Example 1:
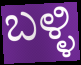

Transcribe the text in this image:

ಬಳ್ಳಿ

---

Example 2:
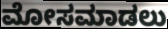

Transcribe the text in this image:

ಮೋಸಮಾಡಲು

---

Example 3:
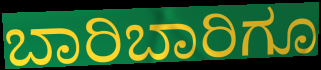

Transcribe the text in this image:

ಬಾರಿಬಾರಿಗೂ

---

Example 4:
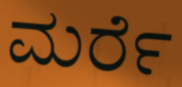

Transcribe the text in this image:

ಮರ್ರೆ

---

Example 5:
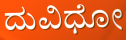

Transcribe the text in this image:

ದುವಿಧೋ